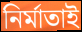
নিৰ্মাতাই